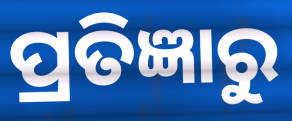
ପ୍ରତିଜ୍ଞାରୁ